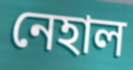
নেহাল